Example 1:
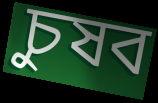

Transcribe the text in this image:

চুষব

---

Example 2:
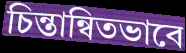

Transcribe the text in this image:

চিন্তান্বিতভাবে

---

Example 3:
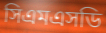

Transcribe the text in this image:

সিএমএসডি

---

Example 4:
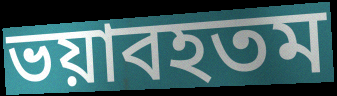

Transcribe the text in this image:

ভয়াবহতম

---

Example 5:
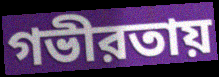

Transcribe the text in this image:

গভীরতায়